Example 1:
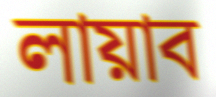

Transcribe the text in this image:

লায়াব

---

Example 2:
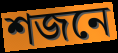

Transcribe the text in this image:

শজনে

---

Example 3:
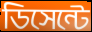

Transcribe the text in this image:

ডিসেন্টে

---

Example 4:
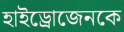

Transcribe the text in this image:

হাইড্রোজেনকে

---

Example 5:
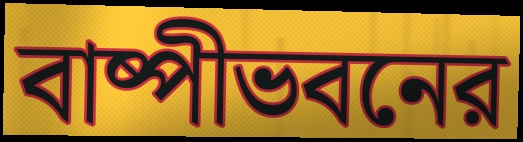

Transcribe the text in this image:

বাষ্পীভবনের